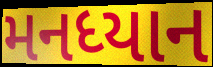
મનધ્યાન